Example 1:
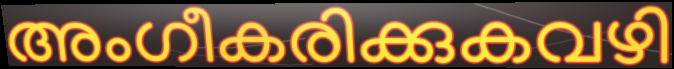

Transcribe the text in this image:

അംഗീകരിക്കുകവഴി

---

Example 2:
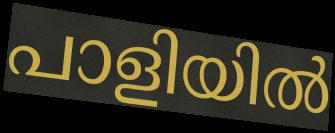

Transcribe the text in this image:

പാളിയിൽ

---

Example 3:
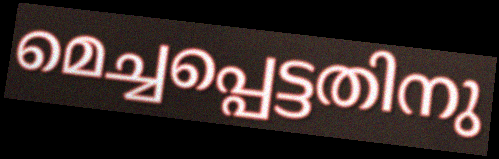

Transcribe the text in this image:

മെച്ചപ്പെട്ടതിനു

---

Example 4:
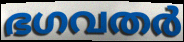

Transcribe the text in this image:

ഭഗവതർ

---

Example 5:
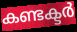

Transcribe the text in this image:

കണ്ടക്ടർ